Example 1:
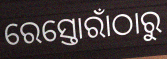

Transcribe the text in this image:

ରେସ୍ତୋରାଁଠାରୁ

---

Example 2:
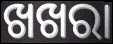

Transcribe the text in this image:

ଖଖରା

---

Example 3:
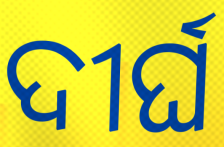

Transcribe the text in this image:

ଦୀର୍ଘ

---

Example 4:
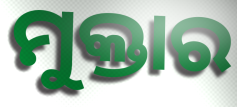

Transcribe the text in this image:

ମୁକ୍ତାର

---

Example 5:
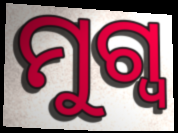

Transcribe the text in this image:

ମୁଗ୍ୱ